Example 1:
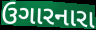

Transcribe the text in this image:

ઉગારનારા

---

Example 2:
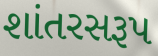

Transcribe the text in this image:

શાંતરસરૂપ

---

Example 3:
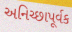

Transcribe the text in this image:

અનિચ્છાપૂર્વક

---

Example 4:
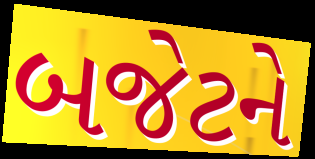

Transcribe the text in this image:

બજેટને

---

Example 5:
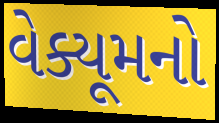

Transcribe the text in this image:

વેક્યૂમનો